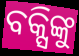
ବକ୍ସିଙ୍କୁ